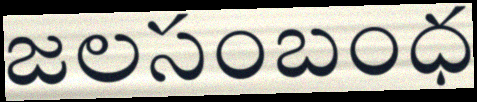
జలసంబంధ